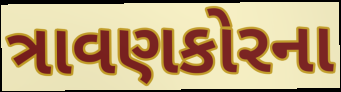
ત્રાવણકોરના